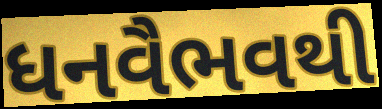
ધનવૈભવથી